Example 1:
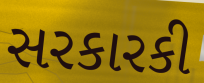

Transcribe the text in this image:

સરકારકી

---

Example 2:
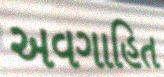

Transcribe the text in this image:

અવગાહિત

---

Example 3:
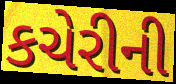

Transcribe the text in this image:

કચેરીની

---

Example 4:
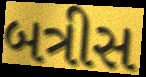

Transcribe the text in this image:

બત્રીસ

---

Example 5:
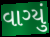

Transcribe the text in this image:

વાગ્યું